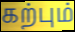
கற்பும்